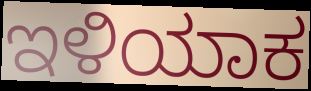
ಇಳಿಯಾಕ